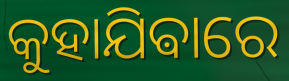
କୁହାଯିଵାରେ